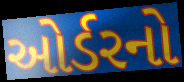
ઓર્ડરનો